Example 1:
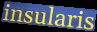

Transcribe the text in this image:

insularis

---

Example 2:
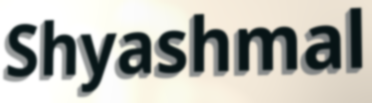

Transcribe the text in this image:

Shyashmal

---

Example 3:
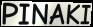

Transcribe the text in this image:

PINAKI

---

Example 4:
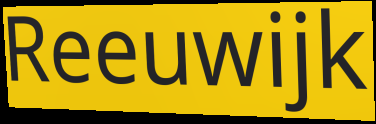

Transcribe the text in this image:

Reeuwijk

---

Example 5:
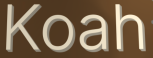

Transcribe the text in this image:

Koah